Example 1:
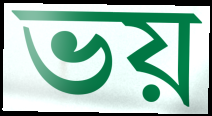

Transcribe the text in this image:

ভয়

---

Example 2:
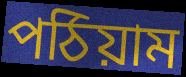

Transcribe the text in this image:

পঠিয়াম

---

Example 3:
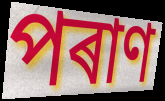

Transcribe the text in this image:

পৰাণ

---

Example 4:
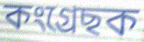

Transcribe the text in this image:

কংগ্ৰেছক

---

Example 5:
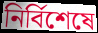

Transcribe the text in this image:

নিৰ্বিশেষে